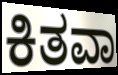
ಕಿತವಾ